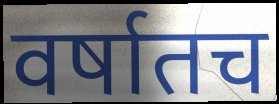
वर्षातच